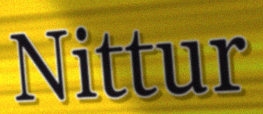
Nittur